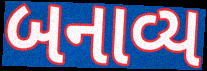
બનાવ્ય